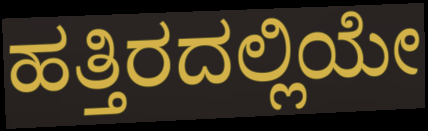
ಹತ್ತಿರದಲ್ಲಿಯೇ